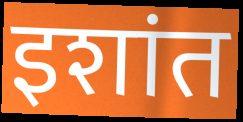
इशांत